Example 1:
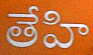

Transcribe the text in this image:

తేహి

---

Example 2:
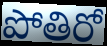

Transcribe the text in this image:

పోతిరో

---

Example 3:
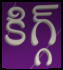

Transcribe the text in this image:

కిగ్గ్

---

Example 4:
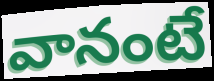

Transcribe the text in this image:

వానంటే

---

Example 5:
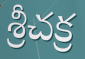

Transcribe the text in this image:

శ్రీచక్ర